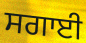
ਸਗਾਈ